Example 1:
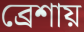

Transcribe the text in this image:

ব্রেশায়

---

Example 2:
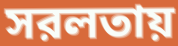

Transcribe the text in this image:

সরলতায়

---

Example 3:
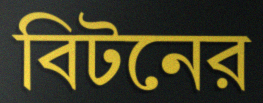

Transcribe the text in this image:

বিটনের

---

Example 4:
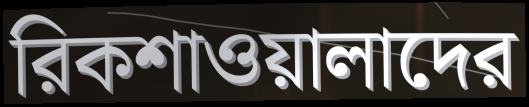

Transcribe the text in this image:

রিকশাওয়ালাদের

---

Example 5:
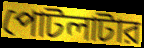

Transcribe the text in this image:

পোটলাটার